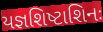
યજ્ઞશિષ્ટાશિનઃ